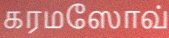
கரமஸோவ்